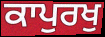
ਕਾਪੁਰਖੁ